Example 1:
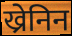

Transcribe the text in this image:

ख्रेनिन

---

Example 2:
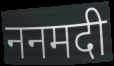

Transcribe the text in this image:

ननमदी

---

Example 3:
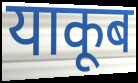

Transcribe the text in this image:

याकूब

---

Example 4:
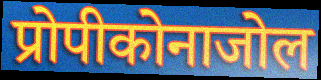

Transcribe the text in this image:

प्रोपीकोनाजोल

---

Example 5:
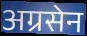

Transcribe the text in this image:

अग्रसेन